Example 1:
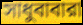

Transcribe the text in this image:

সাধুবাবারা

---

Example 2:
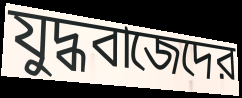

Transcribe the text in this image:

যুদ্ধবাজেদের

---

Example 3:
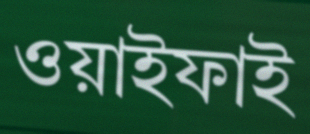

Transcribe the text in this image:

ওয়াইফাই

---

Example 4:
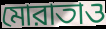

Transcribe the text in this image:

মোরাতাও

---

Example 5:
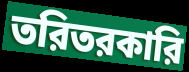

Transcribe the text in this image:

তরিতরকারি